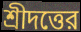
শ্রীদত্তের